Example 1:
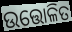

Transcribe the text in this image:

ଉତ୍ତୋଳିତ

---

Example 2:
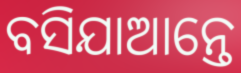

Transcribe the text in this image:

ବସିଯାଆନ୍ତେ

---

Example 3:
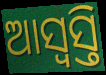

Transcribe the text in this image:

ଆସ୍ୱସ୍ତି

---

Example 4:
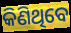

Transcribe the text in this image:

କିଣିଥିବେ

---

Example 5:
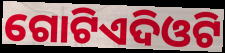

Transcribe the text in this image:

ଗୋଟିଏଦିଓଟି